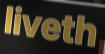
liveth